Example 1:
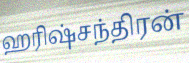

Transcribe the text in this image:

ஹரிஷ்சந்திரன்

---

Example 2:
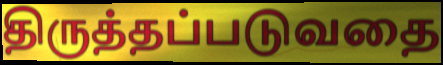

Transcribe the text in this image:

திருத்தப்படுவதை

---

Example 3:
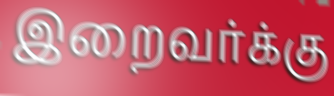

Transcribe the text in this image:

இறைவர்க்கு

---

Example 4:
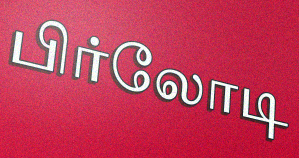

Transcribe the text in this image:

பிர்லோடி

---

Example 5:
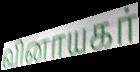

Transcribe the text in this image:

வினாயகர்